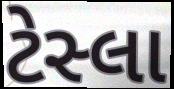
ટેસ્લા